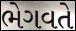
ભેગવતે